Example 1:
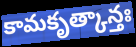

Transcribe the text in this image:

కామకృత్కాన్తః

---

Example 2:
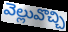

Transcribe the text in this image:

వెల్లువొచ్చి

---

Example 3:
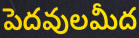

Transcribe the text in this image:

పెదవులమీద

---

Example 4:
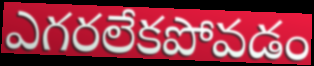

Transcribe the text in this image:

ఎగరలేకపోవడం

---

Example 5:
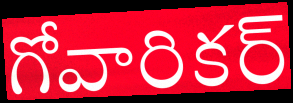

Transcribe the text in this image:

గోవారికర్